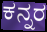
ಕನ್ನರ